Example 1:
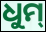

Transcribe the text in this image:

ଧୁମ୍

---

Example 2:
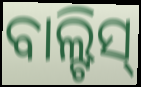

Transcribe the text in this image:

ବାଲ୍ଟିସ୍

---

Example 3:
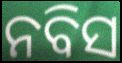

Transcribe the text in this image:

ନବିସ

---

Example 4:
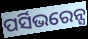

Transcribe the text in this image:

ପର୍ସିଭରେନ୍ସ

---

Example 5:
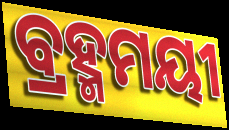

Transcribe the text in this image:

ବ୍ରହ୍ମମୟୀ